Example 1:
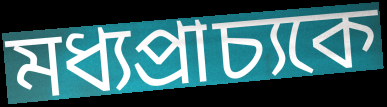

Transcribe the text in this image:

মধ্যপ্রাচ্যকে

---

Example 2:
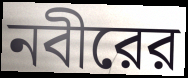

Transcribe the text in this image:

নবীরের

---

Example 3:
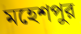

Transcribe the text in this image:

মহেশপুর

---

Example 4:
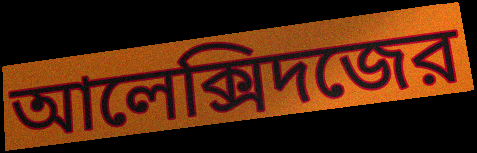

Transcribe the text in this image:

আলেক্সিদজের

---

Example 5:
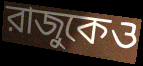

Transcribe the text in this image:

রাজুকেও